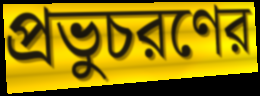
প্রভুচরণের